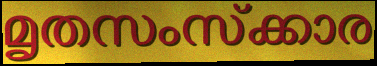
മൃതസംസ്‌ക്കാര